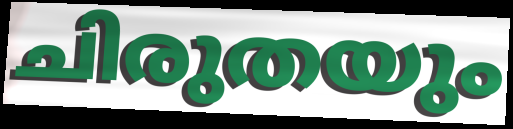
ചിരുതയും